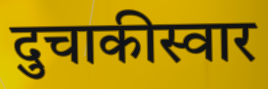
दुचाकीस्वार